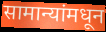
सामान्यांमधून